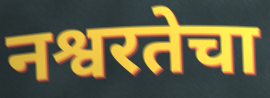
नश्वरतेचा